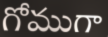
గోముగా